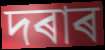
দৰাৰ